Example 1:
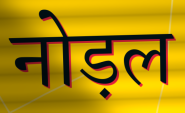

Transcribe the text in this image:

नोड़ल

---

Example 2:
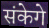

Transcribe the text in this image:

संकेगे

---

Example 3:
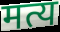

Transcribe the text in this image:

मत्य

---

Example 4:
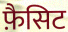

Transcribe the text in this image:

फ़ैसिट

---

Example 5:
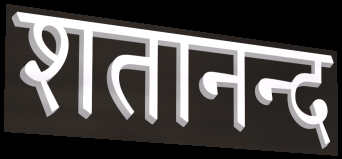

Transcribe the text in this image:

शतानन्द